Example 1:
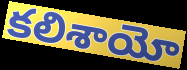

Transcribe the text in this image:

కలిశాయో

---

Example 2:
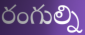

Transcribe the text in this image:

రంగుల్ని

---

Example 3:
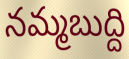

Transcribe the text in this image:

నమ్మబుద్ది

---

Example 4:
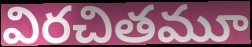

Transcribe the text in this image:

విరచితమూ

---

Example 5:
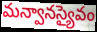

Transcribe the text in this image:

మన్వానస్యైవం